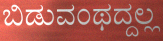
ಬಿಡುವಂಥದ್ದಲ್ಲ